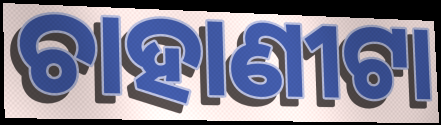
ଚାହାଣୀଟା